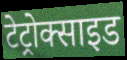
टेट्रोक्साइड